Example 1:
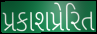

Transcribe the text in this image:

પ્રકાશપ્રેરિત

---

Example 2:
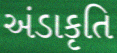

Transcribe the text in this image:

અંડાકૃતિ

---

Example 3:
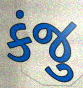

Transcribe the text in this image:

કંજુ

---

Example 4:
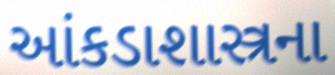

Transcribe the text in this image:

આંકડાશાસ્ત્રના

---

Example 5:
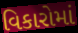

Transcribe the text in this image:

વિકારોમાં